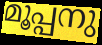
മൂപ്പനു